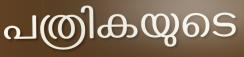
പത്രികയുടെ